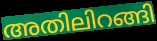
അതിലിറങ്ങി